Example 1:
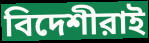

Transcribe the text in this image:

বিদেশীরাই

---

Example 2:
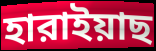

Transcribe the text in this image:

হারাইয়াছ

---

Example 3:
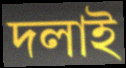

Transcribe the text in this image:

দলাই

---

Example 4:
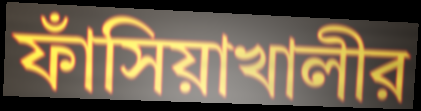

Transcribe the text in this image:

ফাঁসিয়াখালীর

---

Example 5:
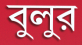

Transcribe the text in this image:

বুলুর